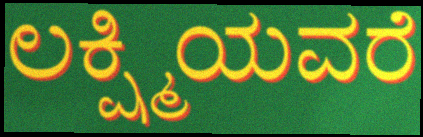
ಲಕ್ಷ್ಮಿಯವರೆ